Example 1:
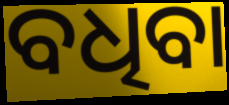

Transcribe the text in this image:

ବଧିବା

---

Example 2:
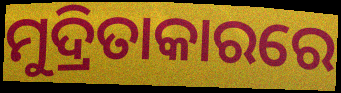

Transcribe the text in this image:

ମୁଦ୍ରିତାକାରରେ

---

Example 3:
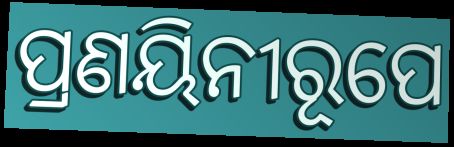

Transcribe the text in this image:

ପ୍ରଣୟିନୀରୂପେ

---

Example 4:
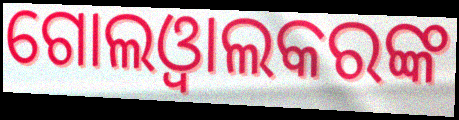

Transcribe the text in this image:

ଗୋଲଓ୍ଵାଲକରଙ୍କ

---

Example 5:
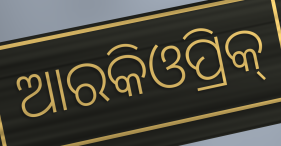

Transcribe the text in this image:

ଆରକିଓପ୍ରିକ୍